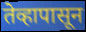
तेव्हापासून